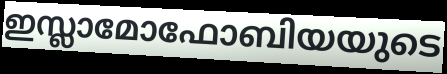
ഇസ്ലാമോഫോബിയയുടെ